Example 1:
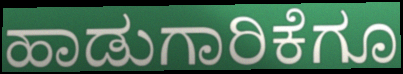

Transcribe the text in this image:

ಹಾಡುಗಾರಿಕೆಗೂ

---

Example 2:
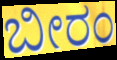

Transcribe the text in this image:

ಬೀರಂ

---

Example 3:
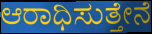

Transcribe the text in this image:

ಆರಾಧಿಸುತ್ತೇನೆ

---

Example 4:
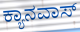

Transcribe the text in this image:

ಕ್ಯಾನವಾಸ್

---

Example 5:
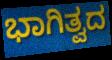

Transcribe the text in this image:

ಭಾಗಿತ್ವದ